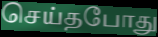
செய்தபோது